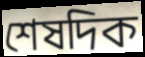
শেষদিক